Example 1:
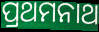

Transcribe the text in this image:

ପ୍ରଥମନାଥ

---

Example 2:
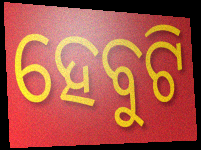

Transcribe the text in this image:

ହେବୁଟି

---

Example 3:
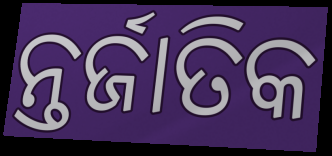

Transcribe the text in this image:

ନ୍ତର୍ଜାତିକ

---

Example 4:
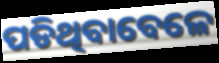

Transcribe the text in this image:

ପଡିଥିବାବେଳେ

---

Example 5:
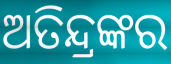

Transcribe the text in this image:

ଅତିନ୍ଦ୍ରଙ୍କର